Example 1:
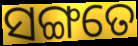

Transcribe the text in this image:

ସଙ୍ଗତେ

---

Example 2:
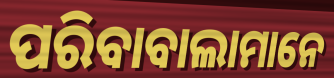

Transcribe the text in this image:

ପରିବାବାଲାମାନେ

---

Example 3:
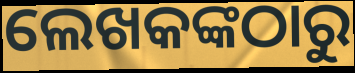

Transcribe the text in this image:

ଲେଖକଙ୍କଠାରୁ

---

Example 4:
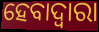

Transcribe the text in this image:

ହେବାଦ୍ୱାରା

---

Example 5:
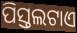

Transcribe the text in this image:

ପିସ୍ତଲଟାଏ